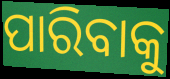
ପାରିବାକୁ